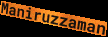
Maniruzzaman